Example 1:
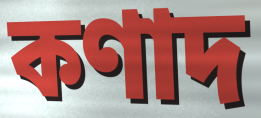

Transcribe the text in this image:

কণাদ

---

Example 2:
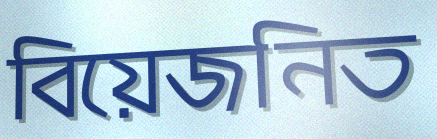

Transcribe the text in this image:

বিয়েজনিত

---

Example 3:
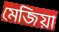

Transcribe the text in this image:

মেজিয়া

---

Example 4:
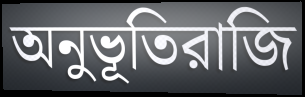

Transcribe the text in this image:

অনুভূতিরাজি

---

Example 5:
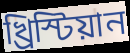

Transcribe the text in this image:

খ্রিস্টিয়ান